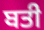
ਬਤੀ